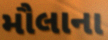
મૌલાના